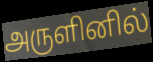
அருளினில்